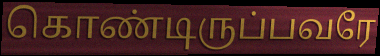
கொண்டிருப்பவரே